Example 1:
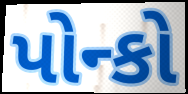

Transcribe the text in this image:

પોન્કો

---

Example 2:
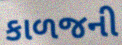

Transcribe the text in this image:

કાળજની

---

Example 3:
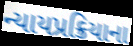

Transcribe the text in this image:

ન્યાયપ્રક્રિયાના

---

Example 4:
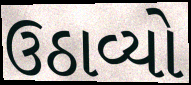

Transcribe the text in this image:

ઉઠાવ્યો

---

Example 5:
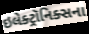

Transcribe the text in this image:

ઇલેક્ટ્રૉનિક્સના